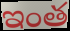
ఇంత